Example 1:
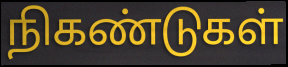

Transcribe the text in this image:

நிகண்டுகள்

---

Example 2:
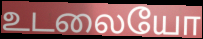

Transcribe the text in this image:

உடலையோ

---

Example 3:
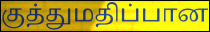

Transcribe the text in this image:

குத்துமதிப்பான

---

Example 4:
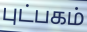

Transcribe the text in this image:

புட்பகம்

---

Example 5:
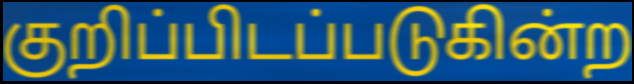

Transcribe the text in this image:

குறிப்பிடப்படுகின்ற